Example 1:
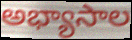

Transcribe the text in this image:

అభ్యాసాల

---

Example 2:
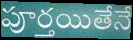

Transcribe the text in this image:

పూర్తయితేనే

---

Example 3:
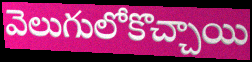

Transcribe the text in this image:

వెలుగులోకొచ్చాయి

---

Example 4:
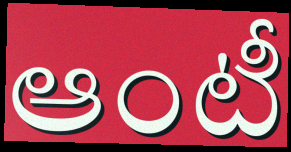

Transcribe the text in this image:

ఆంటీ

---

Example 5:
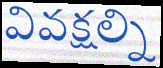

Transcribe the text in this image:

వివక్షల్ని